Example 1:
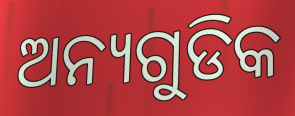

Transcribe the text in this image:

ଅନ୍ୟଗୁଡିକ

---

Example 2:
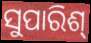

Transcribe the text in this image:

ସୁପାରିଶ୍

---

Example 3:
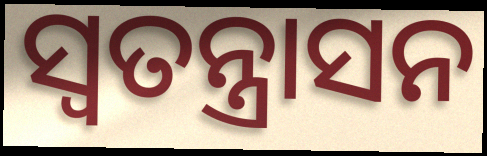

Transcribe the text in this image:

ସ୍ଵତନ୍ତ୍ରାସନ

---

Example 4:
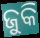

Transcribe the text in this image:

ଜୁକି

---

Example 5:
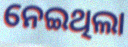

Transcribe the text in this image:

ନେଇଥିଲା